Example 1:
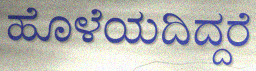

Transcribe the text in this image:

ಹೊಳೆಯದಿದ್ದರೆ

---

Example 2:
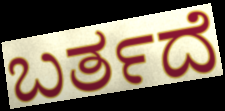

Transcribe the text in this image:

ಬರ್ತದೆ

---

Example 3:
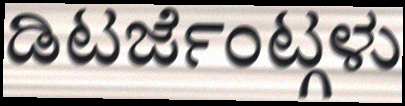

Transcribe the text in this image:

ಡಿಟರ್ಜೆಂಟ್ಗಳು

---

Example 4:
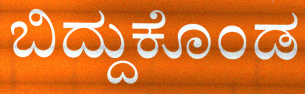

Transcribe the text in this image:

ಬಿದ್ದುಕೊಂಡ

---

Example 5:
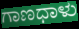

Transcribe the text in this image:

ಗಾಣಧಾಳು